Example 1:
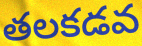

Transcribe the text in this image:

తలకడవ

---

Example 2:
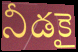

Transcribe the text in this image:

నీడకై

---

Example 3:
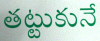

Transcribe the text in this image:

తట్టుకునే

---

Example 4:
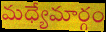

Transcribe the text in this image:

మధ్యేమార్గం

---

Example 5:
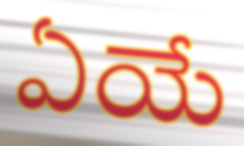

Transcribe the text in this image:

ఏయే